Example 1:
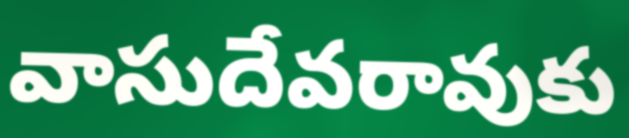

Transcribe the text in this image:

వాసుదేవరావుకు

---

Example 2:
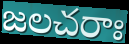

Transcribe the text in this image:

జలచరాః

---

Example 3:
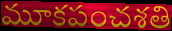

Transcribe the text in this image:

మూకపంచశతి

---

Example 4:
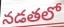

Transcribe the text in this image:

నడతలో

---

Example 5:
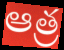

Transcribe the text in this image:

ఆత్ర